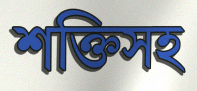
শক্তিসহ